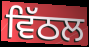
ਵਿੱਠਲ